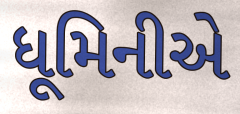
ધૂમિનીએ